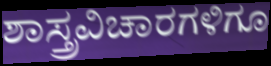
ಶಾಸ್ತ್ರವಿಚಾರಗಳಿಗೂ